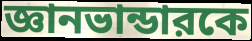
জ্ঞানভান্ডারকে